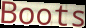
Boots